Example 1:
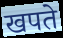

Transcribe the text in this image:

खपते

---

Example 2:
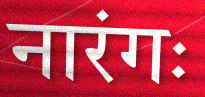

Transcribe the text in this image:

नारंगः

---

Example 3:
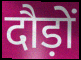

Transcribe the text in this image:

दौड़ों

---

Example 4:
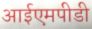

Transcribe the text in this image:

आईएमपीडी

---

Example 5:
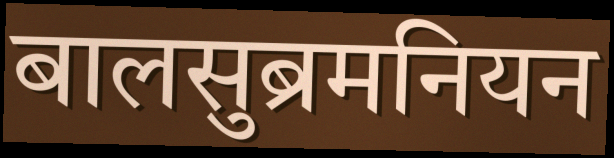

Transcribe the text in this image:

बालसुब्रमनियन